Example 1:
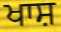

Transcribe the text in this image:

ਖਾਸ਼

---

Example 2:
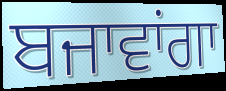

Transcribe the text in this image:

ਬਜਾਵਾਂਗਾ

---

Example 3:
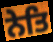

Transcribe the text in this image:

ਨੇਤਿ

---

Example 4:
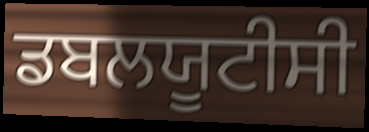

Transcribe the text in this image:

ਡਬਲਯੂਟੀਸੀ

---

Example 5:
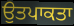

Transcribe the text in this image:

ਉਤਪਾਕਤਾ